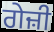
ਗੇਜ਼ੀ